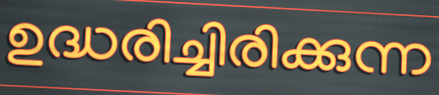
ഉദ്ധരിച്ചിരിക്കുന്ന